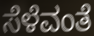
ಸೆಳೆವಂತೆ